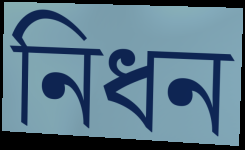
নিধন